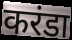
करंडा